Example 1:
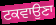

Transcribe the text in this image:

ਟਕਵਾਉਣਾ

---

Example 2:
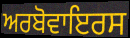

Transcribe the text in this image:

ਅਰਬੋਵਾਇਰਸ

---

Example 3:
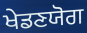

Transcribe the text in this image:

ਖੇਡਣਯੋਗ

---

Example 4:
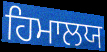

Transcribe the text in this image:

ਹਿਮਾਲਯ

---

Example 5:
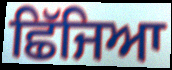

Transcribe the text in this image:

ਛਿੱਜਿਆ